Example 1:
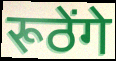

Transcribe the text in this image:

रूठेंगे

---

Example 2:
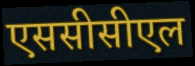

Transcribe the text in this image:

एससीसीएल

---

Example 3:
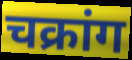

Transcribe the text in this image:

चक्रांग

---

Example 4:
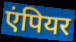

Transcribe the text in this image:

एंपियर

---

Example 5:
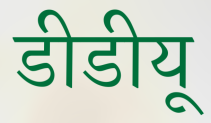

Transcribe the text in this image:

डीडीयू